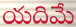
యదిమే